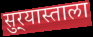
सुर्यास्ताला